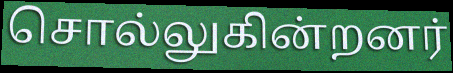
சொல்லுகின்றனர்